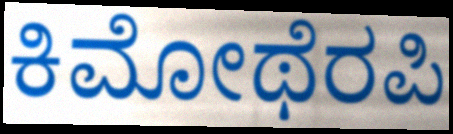
ಕಿಮೋಥೆರಪಿ